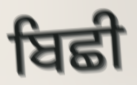
ਬਿਛੀ